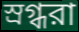
স্রগ্ধরা